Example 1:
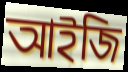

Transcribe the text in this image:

আইজি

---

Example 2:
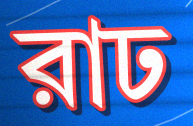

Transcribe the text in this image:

রাঢ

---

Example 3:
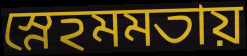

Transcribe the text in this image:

স্নেহমমতায়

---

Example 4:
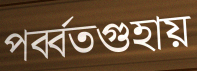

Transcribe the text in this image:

পর্ব্বতগুহায়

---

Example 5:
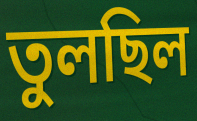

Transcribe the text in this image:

তুলছিল